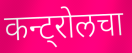
कन्ट्रोलचा